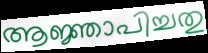
ആജ്ഞാപിച്ചതു